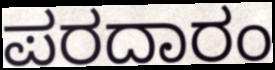
ಪರದಾರಂ